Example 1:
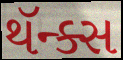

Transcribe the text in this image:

થૅન્ક્સ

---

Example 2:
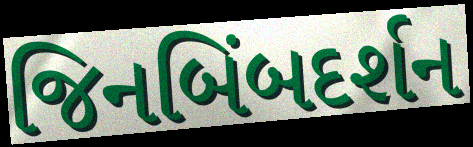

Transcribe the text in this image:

જિનબિંબદર્શન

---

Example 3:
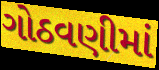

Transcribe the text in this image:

ગોઠવણીમાં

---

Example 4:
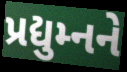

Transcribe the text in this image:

પ્રદ્યુમ્નને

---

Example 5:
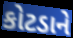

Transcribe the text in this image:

કોટડાને